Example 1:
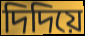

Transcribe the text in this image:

দিদিয়ে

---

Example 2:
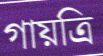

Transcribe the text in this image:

গায়ত্রি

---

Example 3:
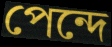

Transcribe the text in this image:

পেন্দে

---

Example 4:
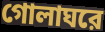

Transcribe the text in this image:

গোলাঘরে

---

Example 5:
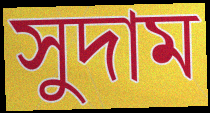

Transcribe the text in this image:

সুদাম